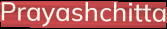
Prayashchitta